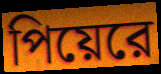
পিয়েরে